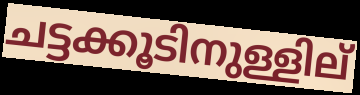
ചട്ടക്കൂടിനുള്ളില്